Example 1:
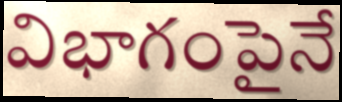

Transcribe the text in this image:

విభాగంపైనే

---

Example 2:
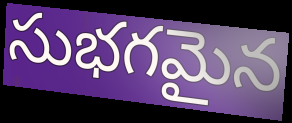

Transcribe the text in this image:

సుభగమైన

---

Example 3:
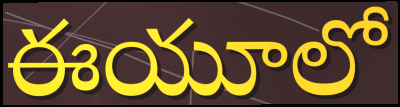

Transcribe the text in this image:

ఈయూలో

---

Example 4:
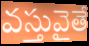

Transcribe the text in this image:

వస్తువైతే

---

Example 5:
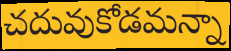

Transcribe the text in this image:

చదువుకోడమన్నా